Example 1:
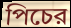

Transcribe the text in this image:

পিচের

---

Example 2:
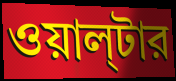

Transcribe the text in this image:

ওয়াল্‌টার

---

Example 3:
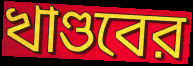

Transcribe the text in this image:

খাণ্ডবের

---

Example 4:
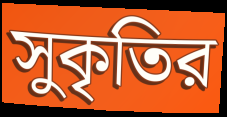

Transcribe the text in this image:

সুকৃতির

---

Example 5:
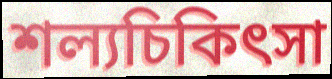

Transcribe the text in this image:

শল্যচিকিৎসা